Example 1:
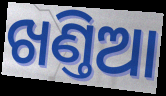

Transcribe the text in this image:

ଖଣ୍ତିଆ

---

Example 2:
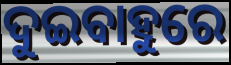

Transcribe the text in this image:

ଦୁଇବାହୁରେ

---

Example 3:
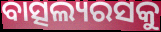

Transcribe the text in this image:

ବାତ୍ସଲ୍ୟରସକୁ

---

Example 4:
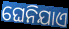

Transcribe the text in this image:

ଘେନିଯାଏ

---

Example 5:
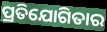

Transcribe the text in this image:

ପ୍ରତିଯୋଗିତାର